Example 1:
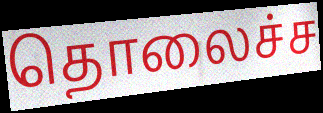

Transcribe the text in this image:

தொலைச்ச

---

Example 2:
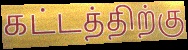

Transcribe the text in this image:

கட்டத்திற்கு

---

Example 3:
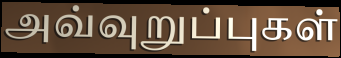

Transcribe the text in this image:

அவ்வுறுப்புகள்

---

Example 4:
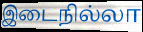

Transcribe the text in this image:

இடைநில்லா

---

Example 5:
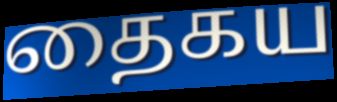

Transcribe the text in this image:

தைகய